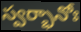
స్వర్భానోః